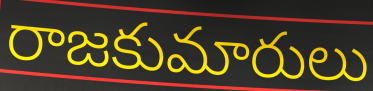
రాజకుమారులు